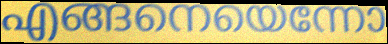
എങ്ങനെയെന്നോ